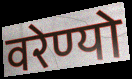
वरेण्यो